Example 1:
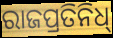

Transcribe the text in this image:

ରାଜପ୍ରତିନିଧ୍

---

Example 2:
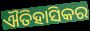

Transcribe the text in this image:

ଐତିହାସିକର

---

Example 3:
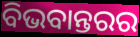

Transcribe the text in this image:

ବିଭବାନ୍ତରର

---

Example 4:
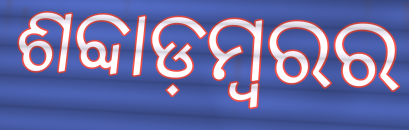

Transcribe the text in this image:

ଶବ୍ଦାଡ଼ମ୍ବରର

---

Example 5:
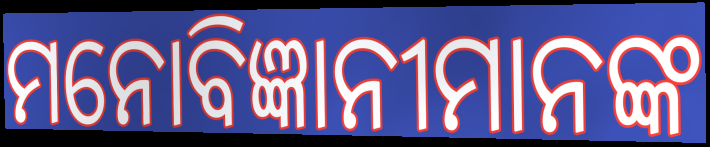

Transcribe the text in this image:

ମନୋବିଜ୍ଞାନୀମାନଙ୍କ